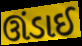
ઊંડાઈ